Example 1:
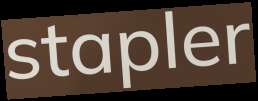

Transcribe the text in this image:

stapler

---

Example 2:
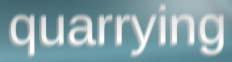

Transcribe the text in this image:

quarrying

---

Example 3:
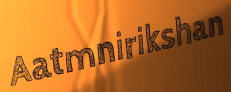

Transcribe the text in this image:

Aatmnirikshan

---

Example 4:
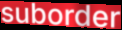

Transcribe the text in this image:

suborder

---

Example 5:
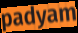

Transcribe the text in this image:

padyam